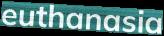
euthanasia